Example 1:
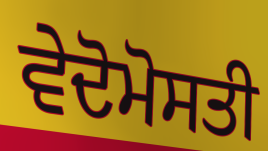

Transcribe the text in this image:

ਵੇਦੋਮੋਸਤੀ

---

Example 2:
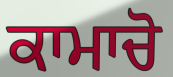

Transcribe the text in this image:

ਕਾਮਾਚੋ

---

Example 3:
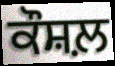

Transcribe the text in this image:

ਕੌਸ਼ਲ਼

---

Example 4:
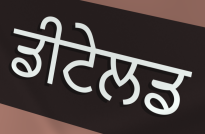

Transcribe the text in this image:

ਡੀਟੇਲਡ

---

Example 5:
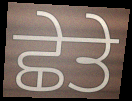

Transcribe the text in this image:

ਛੇਤੇ